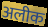
अलीक